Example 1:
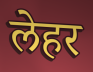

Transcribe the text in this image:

लेहर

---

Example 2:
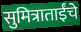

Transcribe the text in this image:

सुमित्राताईंचे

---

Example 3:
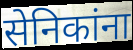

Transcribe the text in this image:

सेनिकांना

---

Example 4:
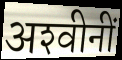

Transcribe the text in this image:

अश्वीनीं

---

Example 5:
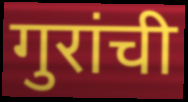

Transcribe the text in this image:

गुरांची